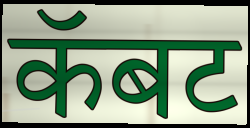
कॅबट